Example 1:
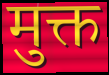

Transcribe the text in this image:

मुक्त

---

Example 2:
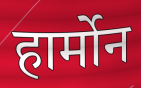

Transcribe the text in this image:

हार्मोन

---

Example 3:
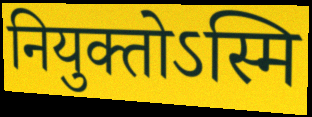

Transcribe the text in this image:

नियुक्तोऽस्मि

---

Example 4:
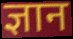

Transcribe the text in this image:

ज्ञान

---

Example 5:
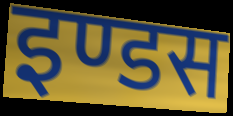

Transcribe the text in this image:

इण्डस